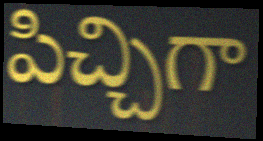
పిచ్చిగా